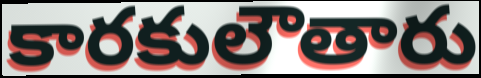
కారకులౌతారు